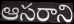
ఆసరాని